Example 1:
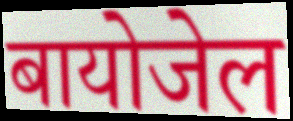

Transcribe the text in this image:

बायोजेल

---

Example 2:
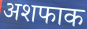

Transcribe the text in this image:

अशफाक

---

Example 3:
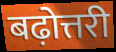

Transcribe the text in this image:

बढ़ोत्तरी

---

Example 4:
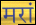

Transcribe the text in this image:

मरां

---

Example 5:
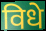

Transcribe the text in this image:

विधे